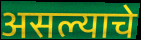
असल्याचे